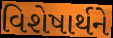
વિશેષાર્થને